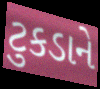
ટુકડાને